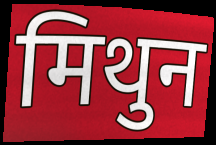
मिथुन